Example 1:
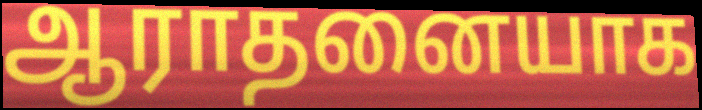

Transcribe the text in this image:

ஆராதனையாக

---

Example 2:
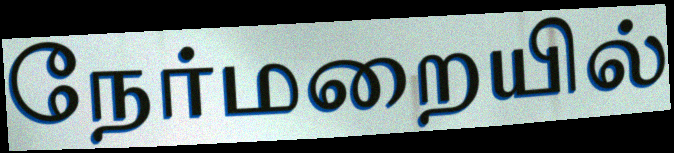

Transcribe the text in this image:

நேர்மறையில்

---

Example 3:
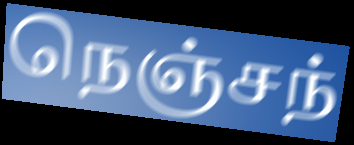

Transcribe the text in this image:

நெஞ்சந்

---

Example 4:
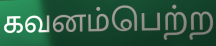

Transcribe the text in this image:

கவனம்பெற்ற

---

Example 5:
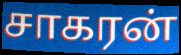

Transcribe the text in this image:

சாகரன்